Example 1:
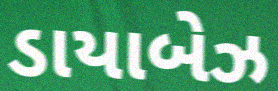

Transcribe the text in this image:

ડાયાબેઝ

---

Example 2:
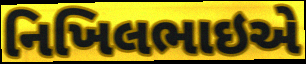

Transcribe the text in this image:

નિખિલભાઇએ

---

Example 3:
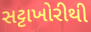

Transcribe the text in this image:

સટ્ટાખોરીથી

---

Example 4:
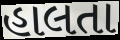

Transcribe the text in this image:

હાલતા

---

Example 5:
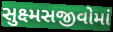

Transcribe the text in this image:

સુક્ષ્મસજીવોમાં